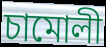
চামোলী